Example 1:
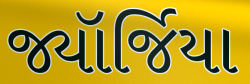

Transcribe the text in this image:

જ્યૉર્જિયા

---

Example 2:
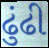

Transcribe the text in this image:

ઢુંઢી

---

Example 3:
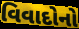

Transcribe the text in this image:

વિવાદોનો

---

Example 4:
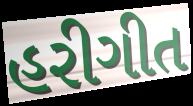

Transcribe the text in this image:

હરીગીત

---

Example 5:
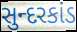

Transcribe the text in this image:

સુન્દરકાંડ